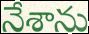
నేశాను